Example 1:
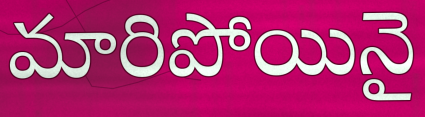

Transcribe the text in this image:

మారిపోయినై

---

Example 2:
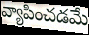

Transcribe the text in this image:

వ్యాపించడమే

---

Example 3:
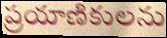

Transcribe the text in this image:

ప్రయాణికులను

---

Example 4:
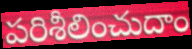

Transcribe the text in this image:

పరిశీలించుదాం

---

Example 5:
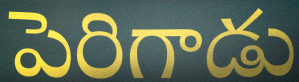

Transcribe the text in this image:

పెరిగాడు